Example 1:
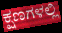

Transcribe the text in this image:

ಕ್ಷಣಗಳಲ್ಲಿ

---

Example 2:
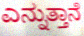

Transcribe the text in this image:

ಎನ್ನುತ್ತಾನೆ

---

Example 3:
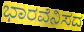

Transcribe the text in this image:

ಭಾರವೆನಿಸದ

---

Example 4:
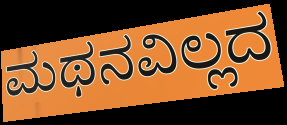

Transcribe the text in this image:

ಮಥನವಿಲ್ಲದ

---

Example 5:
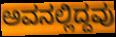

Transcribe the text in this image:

ಅವನಲ್ಲಿದ್ದವು